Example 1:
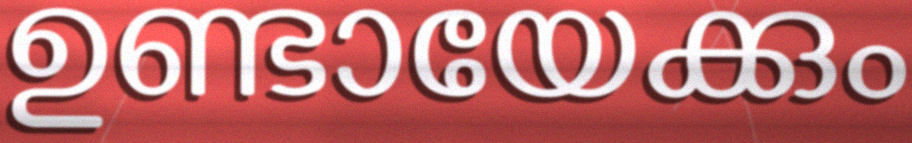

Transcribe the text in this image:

ഉണ്ടായേക്കും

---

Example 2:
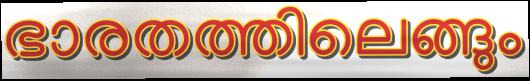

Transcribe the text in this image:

ഭാരതത്തിലെങ്ങും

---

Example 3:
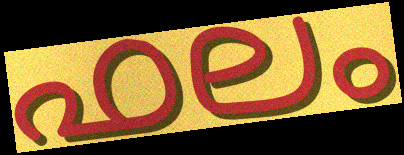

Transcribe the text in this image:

ഫലം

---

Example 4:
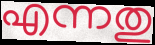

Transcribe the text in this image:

എന്നതു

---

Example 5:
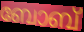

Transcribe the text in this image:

ബോബ്